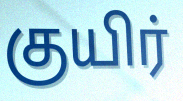
குயிர்